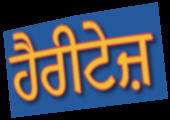
ਹੈਰੀਟੇਜ਼